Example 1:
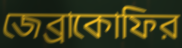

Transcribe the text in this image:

জেব্রাকোফির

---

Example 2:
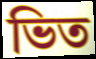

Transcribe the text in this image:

ভিত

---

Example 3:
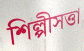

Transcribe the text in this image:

শিল্পীসত্তা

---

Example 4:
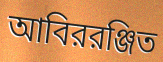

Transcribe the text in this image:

আবিররঞ্জিত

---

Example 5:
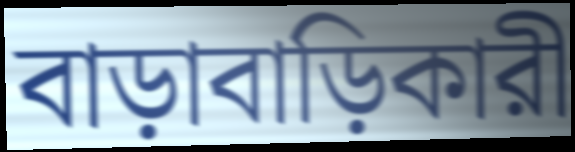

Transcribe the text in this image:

বাড়াবাড়িকারী